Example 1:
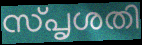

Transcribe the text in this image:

സ്പൃശതി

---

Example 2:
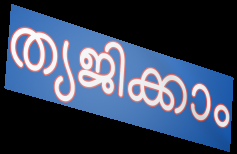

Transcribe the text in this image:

ത്യജിക്കാം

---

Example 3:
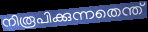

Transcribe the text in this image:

നിരൂപിക്കുന്നതെന്ത്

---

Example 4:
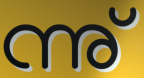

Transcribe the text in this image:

ന്നു്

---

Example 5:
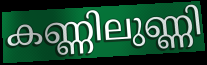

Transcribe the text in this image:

കണ്ണിലുണ്ണി